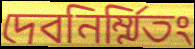
দেবনির্ম্মিতং